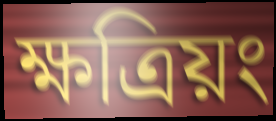
ক্ষত্রিয়ং